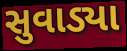
સુવાડ્યા